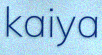
kaiya